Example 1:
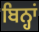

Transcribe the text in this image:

ਬਿਨ੍ਹਾਂ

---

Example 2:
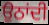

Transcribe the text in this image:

ਉਠਾਂਦੀ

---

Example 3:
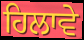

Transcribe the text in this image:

ਹਿਲਾਵੇ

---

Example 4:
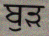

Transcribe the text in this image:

ਬੁੜ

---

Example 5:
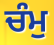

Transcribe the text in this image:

ਚੰਮੁ